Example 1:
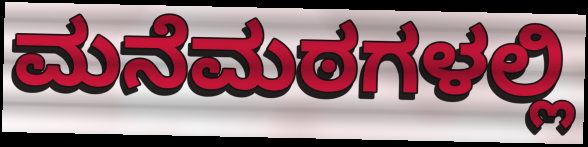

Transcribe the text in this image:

ಮನೆಮಠಗಳಲ್ಲಿ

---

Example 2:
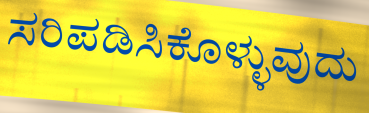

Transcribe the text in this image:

ಸರಿಪಡಿಸಿಕೊಳ್ಳುವುದು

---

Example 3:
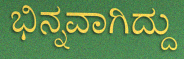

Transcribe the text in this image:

ಭಿನ್ನವಾಗಿದ್ದು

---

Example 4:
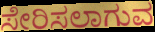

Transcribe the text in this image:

ಸೇರಿಸಲಾಗುವ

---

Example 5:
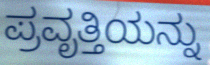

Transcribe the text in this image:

ಪ್ರವೃತ್ತಿಯನ್ನು